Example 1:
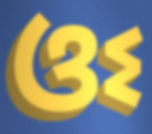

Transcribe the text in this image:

ଓଽ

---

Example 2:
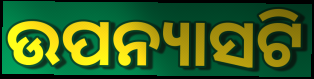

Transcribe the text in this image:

ଉପନ୍ୟାସଟି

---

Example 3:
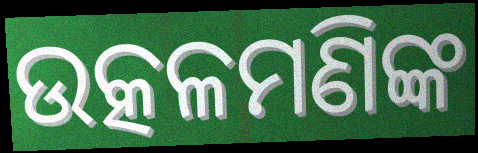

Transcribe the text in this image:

ଉତ୍କଳମଣିଙ୍କ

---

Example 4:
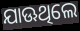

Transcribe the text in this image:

ଯାଊଥିଲେ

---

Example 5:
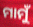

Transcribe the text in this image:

ମାମୁଁ